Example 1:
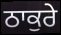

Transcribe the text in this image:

ਠਾਕੁਰੇ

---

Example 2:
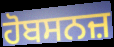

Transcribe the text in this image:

ਹੋਬਸਨਜ਼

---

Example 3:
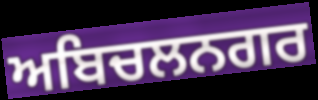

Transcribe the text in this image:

ਅਬਿਚਲਨਗਰ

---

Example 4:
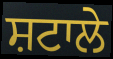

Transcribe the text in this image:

ਸ਼ਟਾਲੇ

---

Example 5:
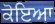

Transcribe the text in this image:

ਕੋਇਆ